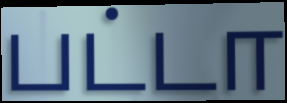
பட்டா